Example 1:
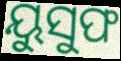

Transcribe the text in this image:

ୟୁସୁଫ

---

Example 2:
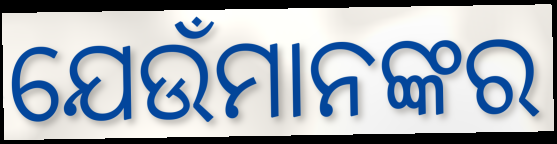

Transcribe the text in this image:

ଯେଉଁମାନଙ୍କର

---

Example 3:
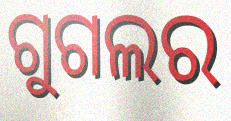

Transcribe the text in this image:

ଗୁଗଲର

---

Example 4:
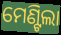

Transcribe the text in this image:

ମେଣ୍ଟିଲା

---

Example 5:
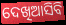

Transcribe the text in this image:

ଦେଖିଆସିବି